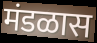
मंडळास